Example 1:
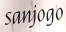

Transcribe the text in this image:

sanjogo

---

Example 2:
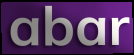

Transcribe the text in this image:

abar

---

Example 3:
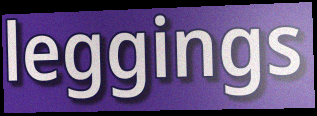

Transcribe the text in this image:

leggings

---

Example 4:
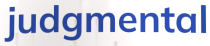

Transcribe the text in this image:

judgmental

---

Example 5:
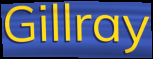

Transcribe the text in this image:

Gillray